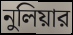
নুলিয়ার